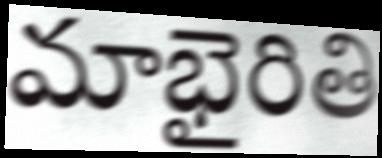
మాభైరితి